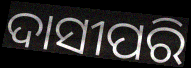
ଦାସୀପରି